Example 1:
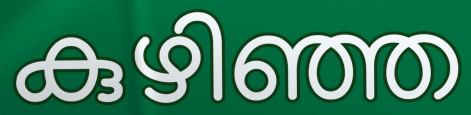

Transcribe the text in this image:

കുഴിഞ്ഞ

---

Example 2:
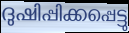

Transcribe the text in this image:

ദുഷിപ്പിക്കപ്പെട്ടു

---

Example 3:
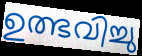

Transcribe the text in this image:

ഉത്ഭവിച്ചു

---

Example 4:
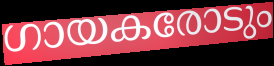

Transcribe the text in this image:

ഗായകരോടും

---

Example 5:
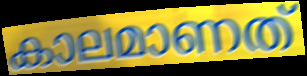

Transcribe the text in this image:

കാലമാണത്